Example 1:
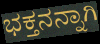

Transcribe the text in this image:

ಭಕ್ತನನ್ನಾಗಿ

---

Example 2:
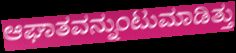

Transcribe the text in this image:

ಆಘಾತವನ್ನುಂಟುಮಾಡಿತ್ತು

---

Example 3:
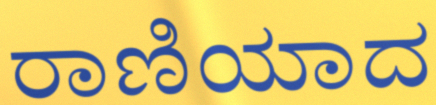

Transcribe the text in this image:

ರಾಣಿಯಾದ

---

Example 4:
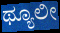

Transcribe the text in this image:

ಥ್ಯೂಲೀ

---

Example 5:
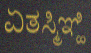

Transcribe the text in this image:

ಏತಸ್ಮಿಞ್ಹಿ